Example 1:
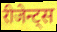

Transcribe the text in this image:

रीजेन्ट्स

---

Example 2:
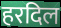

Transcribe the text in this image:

हरदिल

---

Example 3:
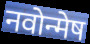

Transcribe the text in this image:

नवोन्‍मेष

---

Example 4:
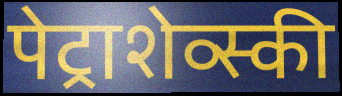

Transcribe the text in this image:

पेट्राशेव्स्की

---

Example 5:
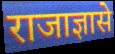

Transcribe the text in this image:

राजाज्ञासे